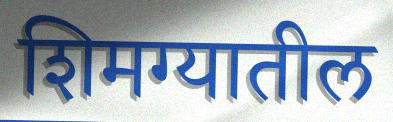
शिमग्यातील